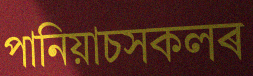
পানিয়াচসকলৰ